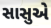
સાસુએ